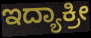
ಇದ್ಯಾಕ್ರೀ